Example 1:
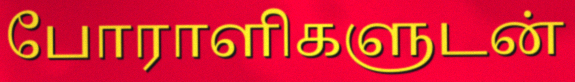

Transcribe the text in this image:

போராளிகளுடன்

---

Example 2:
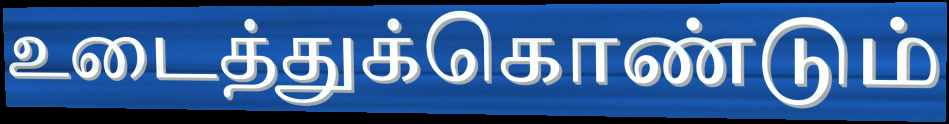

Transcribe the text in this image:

உடைத்துக்கொண்டும்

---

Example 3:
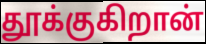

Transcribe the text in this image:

தூக்குகிறான்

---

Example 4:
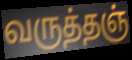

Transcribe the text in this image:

வருத்தஞ்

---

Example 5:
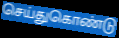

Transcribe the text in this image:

செய்துகொண்டு